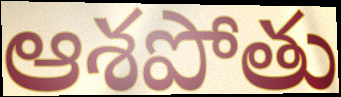
ఆశపోతు